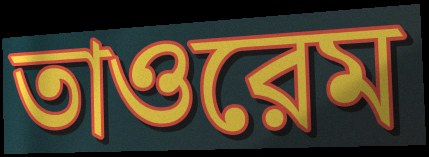
তাওরেম